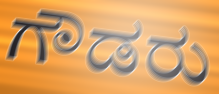
ಗೌಡರು